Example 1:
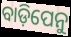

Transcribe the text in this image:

ବାଡ଼ିପେନୁ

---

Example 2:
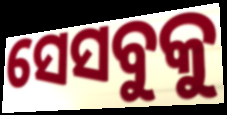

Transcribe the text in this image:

ସେସବୁକୁ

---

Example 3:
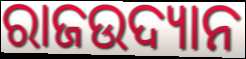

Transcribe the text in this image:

ରାଜଉଦ୍ୟାନ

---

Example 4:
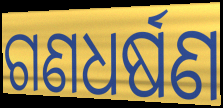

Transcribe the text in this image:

ଗଣଧର୍ଷଣ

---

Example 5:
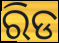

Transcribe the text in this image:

ରିଡ